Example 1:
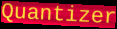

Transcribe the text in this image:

Quantizer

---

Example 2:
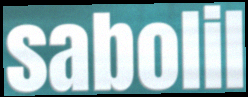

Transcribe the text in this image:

sabolil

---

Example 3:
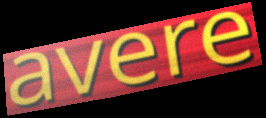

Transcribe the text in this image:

avere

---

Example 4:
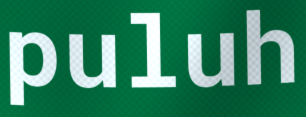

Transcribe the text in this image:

puluh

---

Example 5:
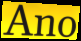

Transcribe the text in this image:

Ano